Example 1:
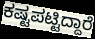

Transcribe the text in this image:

ಕಷ್ಟಪಟ್ಟಿದ್ದಾರೆ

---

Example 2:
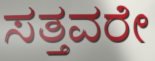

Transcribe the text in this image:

ಸತ್ತವರೇ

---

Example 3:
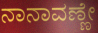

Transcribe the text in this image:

ನಾನಾವಣ್ಣೇ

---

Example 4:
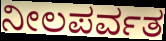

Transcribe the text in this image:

ನೀಲಪರ್ವತ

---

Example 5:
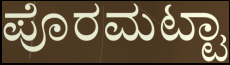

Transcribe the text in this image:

ಪೊರಮಟ್ಟಾ